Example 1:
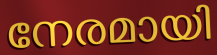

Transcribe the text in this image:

നേരമായി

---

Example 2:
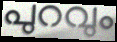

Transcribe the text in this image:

പുറവും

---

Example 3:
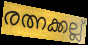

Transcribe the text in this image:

രത്നക്കല്ല്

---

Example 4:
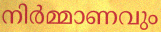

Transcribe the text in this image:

നിർമ്മാണവും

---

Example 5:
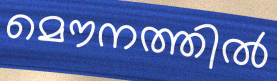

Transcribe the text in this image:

മൌനത്തിൽ